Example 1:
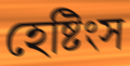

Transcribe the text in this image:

হেষ্টিংস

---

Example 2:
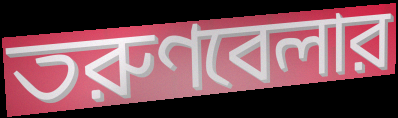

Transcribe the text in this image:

তরুণবেলার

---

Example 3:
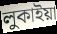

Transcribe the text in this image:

লুকাইয়া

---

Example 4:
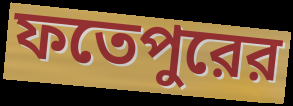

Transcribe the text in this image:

ফতেপুরের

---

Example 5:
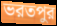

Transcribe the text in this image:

ভরতপুর